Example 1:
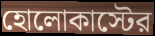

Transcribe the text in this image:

হোলোকাস্টের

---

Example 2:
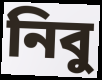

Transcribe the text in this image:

নিবু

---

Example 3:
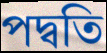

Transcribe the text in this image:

পদ্বতি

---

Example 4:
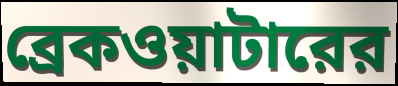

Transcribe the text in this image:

ব্রেকওয়াটারের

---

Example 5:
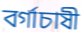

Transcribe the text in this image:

বর্গাচাষী